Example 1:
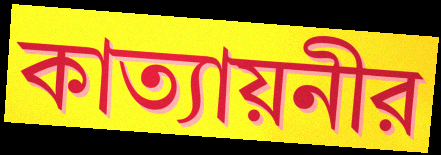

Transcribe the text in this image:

কাত্যায়নীর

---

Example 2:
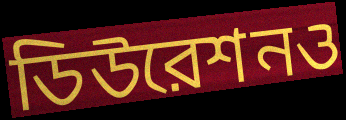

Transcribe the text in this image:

ডিউরেশনও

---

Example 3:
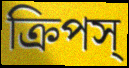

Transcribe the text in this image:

ক্রিপস্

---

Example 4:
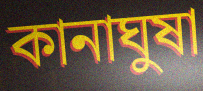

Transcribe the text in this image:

কানাঘুষা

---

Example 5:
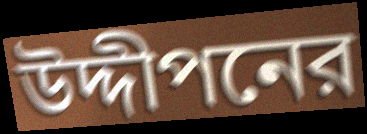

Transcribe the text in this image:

উদ্দীপনের